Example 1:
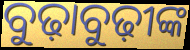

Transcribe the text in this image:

ବୁଢ଼ାବୁଢ଼ୀଙ୍କ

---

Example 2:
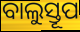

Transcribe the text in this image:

ବାଲୁସ୍ତୂପ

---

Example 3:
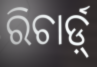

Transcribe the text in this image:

ରିଚାର୍ଡ଼୍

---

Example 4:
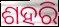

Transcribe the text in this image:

ଶହରି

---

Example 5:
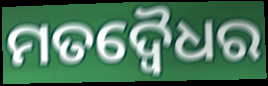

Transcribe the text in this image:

ମତଦ୍ୱୈଧର